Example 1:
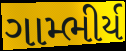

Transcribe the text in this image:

ગામ્ભીર્ય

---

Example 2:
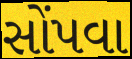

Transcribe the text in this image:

સોંપવા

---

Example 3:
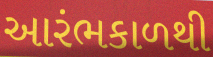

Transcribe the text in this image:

આરંભકાળથી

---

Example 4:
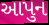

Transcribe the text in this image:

આપુન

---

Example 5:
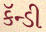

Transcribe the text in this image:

કૅન્ડી